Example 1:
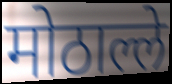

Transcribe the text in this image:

मोठाल्ले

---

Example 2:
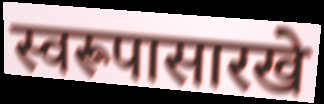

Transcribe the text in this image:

स्वरूपासारखे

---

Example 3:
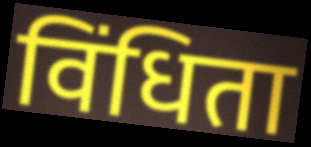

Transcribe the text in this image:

विंधिता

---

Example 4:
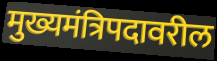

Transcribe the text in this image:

मुख्यमंत्रिपदावरील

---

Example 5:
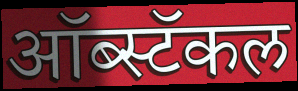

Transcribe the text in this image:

ऑब्स्टॅकल